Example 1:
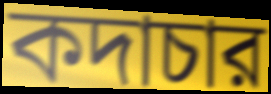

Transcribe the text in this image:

কদাচার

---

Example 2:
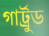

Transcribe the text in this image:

গার্ট্রুড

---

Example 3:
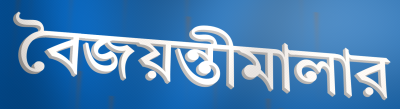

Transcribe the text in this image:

বৈজয়ন্তীমালার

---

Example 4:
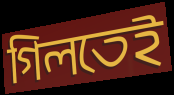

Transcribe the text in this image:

গিলতেই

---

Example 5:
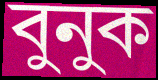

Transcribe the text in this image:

বুনুক